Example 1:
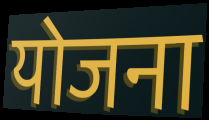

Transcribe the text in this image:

योजना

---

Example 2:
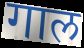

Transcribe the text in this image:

गाल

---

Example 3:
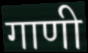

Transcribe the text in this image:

गाणी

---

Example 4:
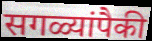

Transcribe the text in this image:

सगळ्यांपैकी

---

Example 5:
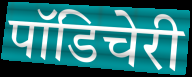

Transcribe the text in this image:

पॉंडिचेरी